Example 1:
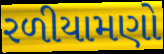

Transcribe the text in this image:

રળીયામણો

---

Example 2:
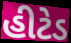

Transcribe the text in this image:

હીટેડ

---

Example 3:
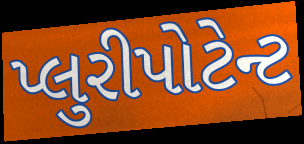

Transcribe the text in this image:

પ્લુરીપોટેન્ટ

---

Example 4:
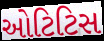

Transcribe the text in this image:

ઓટિટિસ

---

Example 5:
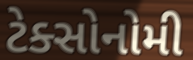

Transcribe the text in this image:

ટેક્સોનોમી